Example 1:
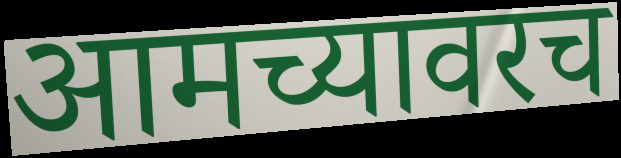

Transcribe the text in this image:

आमच्यावरच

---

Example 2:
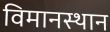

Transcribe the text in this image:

विमानस्थान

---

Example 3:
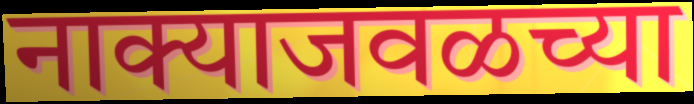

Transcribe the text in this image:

नाक्याजवळच्या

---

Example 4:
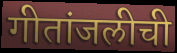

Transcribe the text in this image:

गीतांजलीची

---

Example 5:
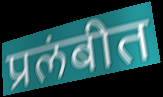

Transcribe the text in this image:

प्रलंबीत